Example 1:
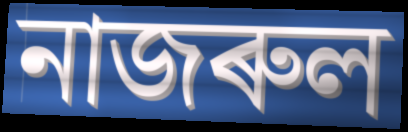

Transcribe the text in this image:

নাজৰুল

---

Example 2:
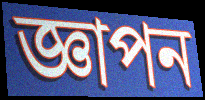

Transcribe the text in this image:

জ্ঞাপন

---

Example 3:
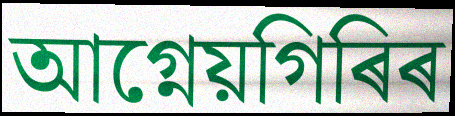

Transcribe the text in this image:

আগ্নেয়গিৰিৰ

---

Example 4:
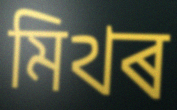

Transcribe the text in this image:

মিথৰ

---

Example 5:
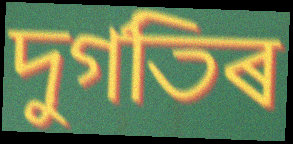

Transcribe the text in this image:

দুৰ্গতিৰ